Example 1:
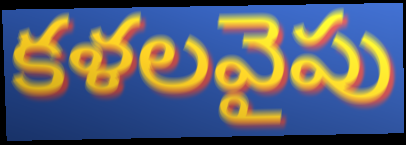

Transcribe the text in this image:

కళలవైపు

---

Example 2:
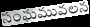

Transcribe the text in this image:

సంఘమువలన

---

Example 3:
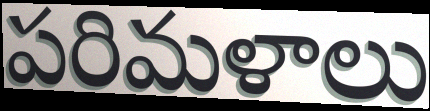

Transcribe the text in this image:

పరిమళాలు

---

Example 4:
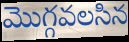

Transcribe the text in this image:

మొగ్గవలసిన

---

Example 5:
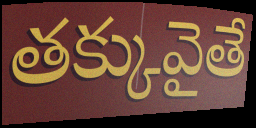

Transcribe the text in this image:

తక్కువైతే